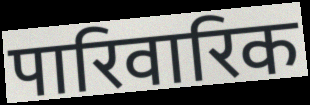
पारिवारिक